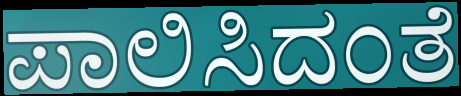
ಪಾಲಿಸಿದಂತೆ